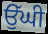
ਉੱਘੀ